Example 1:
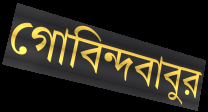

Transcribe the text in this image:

গোবিন্দবাবুর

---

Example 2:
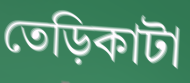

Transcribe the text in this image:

তেড়িকাটা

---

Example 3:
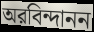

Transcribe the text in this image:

অরবিন্দানন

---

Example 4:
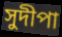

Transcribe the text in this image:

সুদীপা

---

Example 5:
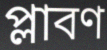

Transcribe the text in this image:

প্লাবণ